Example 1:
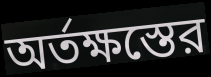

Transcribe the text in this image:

অর্তক্ষস্তের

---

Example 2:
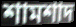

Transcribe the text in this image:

শামশাদ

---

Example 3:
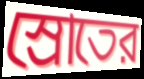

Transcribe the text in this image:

স্রোতের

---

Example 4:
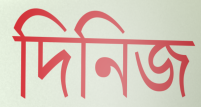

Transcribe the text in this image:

দিনিজ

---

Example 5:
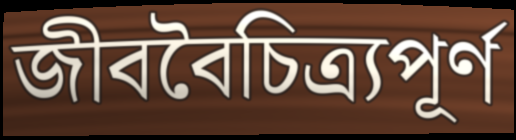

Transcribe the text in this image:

জীববৈচিত্র্যপূর্ণ